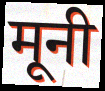
मूनी